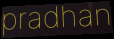
pradhan